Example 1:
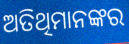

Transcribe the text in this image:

ଅତିଥିମାନଙ୍କର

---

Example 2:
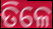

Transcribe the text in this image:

ତିଳେ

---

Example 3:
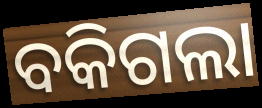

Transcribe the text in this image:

ବକିଗଲା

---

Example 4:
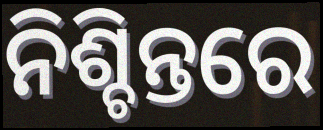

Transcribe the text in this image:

ନିଶ୍ଚିନ୍ତରେ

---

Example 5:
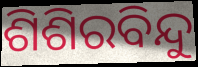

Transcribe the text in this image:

ଶିଶିରବିନ୍ଦୁ